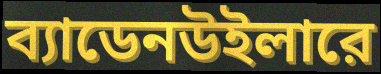
ব্যাডেনউইলারে